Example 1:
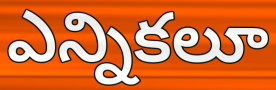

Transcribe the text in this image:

ఎన్నికలూ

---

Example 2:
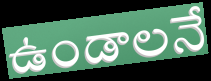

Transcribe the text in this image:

ఉండాలనే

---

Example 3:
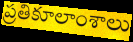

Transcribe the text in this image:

ప్రతికూలాంశాలు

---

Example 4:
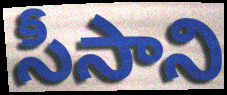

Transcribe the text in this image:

సీసాని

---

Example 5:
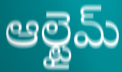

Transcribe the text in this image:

ఆల్టైమ్